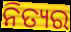
ନିତ୍ୟର